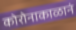
कोरोनाकाळानं